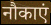
नौकाएं